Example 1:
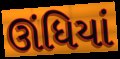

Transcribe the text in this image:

ઊંધિયાં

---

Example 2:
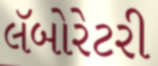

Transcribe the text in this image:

લૅબોરેટરી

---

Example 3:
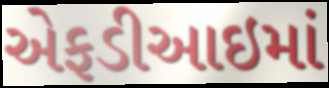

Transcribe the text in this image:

એફડીઆઇમાં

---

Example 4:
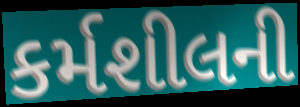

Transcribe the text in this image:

કર્મશીલની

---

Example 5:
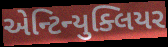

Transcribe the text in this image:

એન્ટિન્યુક્લિયર